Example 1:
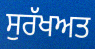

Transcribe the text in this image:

ਸੁਰੱਖਅਤ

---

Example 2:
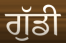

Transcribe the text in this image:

ਗੁੱਡੀ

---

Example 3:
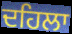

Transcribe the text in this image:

ਦਹਿਲਾ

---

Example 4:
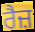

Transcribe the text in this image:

ਰੈਜ਼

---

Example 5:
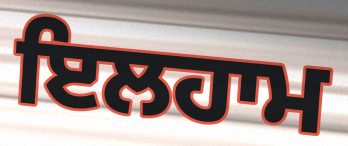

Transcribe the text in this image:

ਇਲਹਾਮ